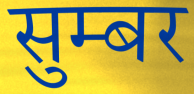
सुम्बर